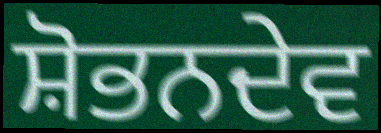
ਸ਼ੋਭਨਦੇਵ